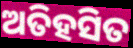
ଅତିହସିତ